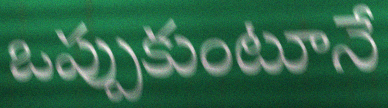
ఒప్పుకుంటూనే